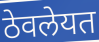
ठेवलेयत